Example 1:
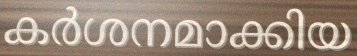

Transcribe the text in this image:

കർശനമാക്കിയ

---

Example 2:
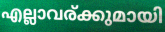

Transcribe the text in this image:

എല്ലാവര്ക്കുമായി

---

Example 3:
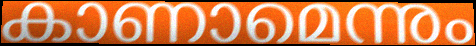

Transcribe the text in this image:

കാണാമെന്നും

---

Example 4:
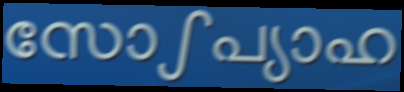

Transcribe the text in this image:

സോഽപ്യാഹ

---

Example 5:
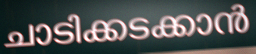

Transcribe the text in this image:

ചാടിക്കടക്കാൻ